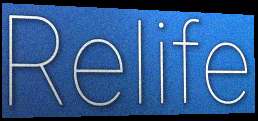
Relife